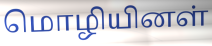
மொழியினள்